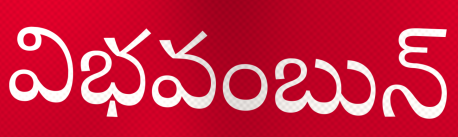
విభవంబున్